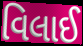
વિલાઈ